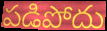
పడిపోదు